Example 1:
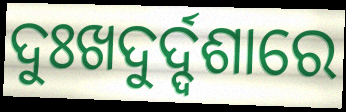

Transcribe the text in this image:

ଦୁଃଖଦୁର୍ଦ୍ଦଶାରେ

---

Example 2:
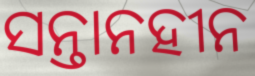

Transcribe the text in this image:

ସନ୍ତାନହୀନ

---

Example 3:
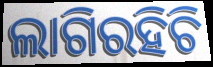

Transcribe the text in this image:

ଲାଗିରହିଚି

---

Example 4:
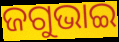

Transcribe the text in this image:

ଜଗୁଭାଇ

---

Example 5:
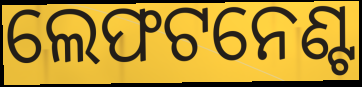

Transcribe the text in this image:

ଲେଫଟନେଣ୍ଟ